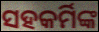
ସହକର୍ମିଙ୍କ